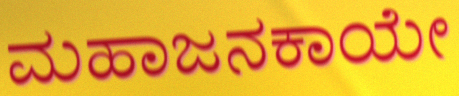
ಮಹಾಜನಕಾಯೇ